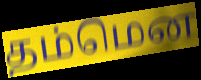
தம்மென